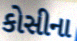
કોસીના